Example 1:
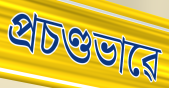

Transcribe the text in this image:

প্ৰচণ্ডভাৱে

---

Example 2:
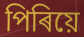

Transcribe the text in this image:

পিৰিয়ে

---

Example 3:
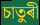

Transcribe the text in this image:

চাতুৰী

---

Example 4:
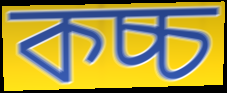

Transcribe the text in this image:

কচ্চ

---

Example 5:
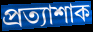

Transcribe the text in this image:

প্ৰত্যাশাক